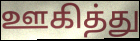
ஊகித்து